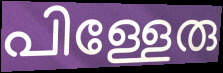
പിള്ളേരു